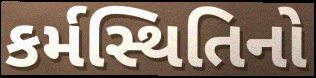
કર્મસ્થિતિનો